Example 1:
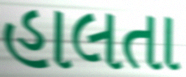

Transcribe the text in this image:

હાલતા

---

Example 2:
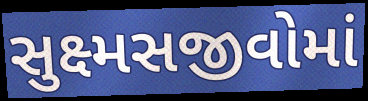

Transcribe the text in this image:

સુક્ષ્મસજીવોમાં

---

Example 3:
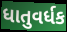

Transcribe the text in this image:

ધાતુવર્ધક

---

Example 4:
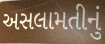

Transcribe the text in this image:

અસલામતીનું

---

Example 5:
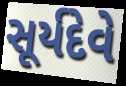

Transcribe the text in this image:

સૂર્યદેવે